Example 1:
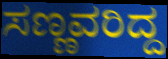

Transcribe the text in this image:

ಸಣ್ಣವರಿದ್ದ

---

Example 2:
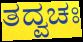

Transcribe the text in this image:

ತದ್ವಚಃ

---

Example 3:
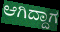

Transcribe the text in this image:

ಆಗಿದ್ದಾಗ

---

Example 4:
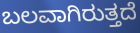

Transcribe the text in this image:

ಬಲವಾಗಿರುತ್ತದೆ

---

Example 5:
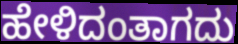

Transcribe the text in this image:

ಹೇಳಿದಂತಾಗದು